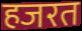
हजरत